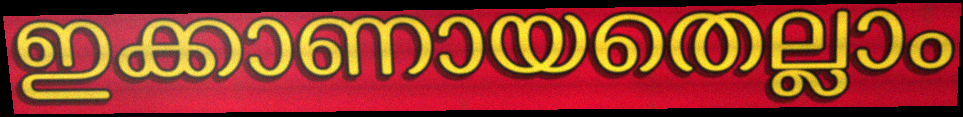
ഇക്കാണായതെല്ലാം